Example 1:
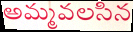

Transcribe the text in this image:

అమ్మవలసిన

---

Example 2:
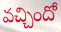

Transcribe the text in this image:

వచ్చిందో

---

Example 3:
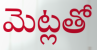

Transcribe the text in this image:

మెట్లతో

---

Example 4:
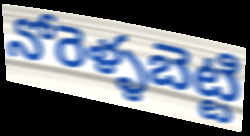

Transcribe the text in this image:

నోరెళ్ళబెట్టి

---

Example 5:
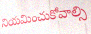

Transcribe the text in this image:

నియమించుకోవాల్సి